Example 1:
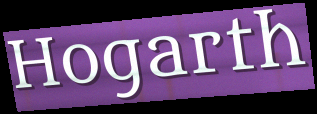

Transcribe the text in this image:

Hogarth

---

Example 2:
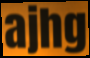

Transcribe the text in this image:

ajhg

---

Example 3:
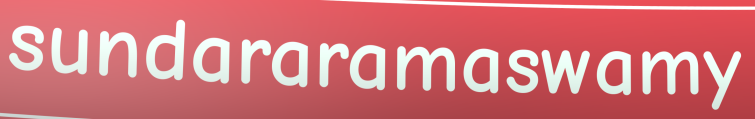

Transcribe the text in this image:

sundararamaswamy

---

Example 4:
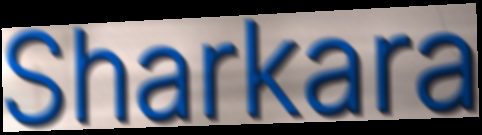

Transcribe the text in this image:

Sharkara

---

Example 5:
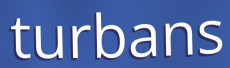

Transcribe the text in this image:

turbans